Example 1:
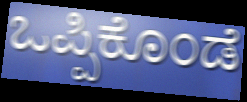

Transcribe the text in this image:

ಒಪ್ಪಿಕೊಂಡೆ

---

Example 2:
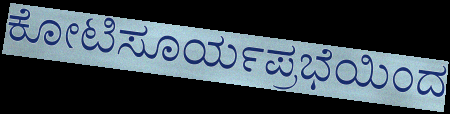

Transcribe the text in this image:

ಕೋಟಿಸೂರ್ಯಪ್ರಭೆಯಿಂದ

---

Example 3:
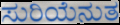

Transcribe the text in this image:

ಸುರಿಯೆನುತ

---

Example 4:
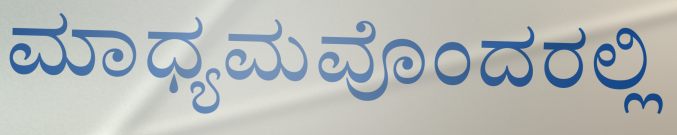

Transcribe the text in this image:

ಮಾಧ್ಯಮವೊಂದರಲ್ಲಿ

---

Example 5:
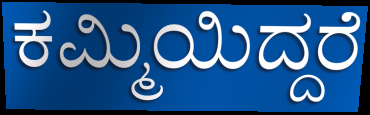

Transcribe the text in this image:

ಕಮ್ಮಿಯಿದ್ದರೆ